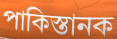
পাকিস্তানক